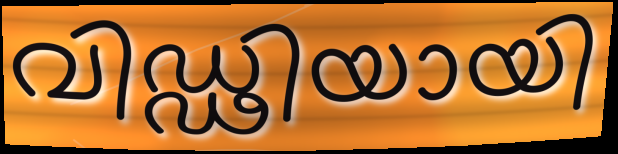
വിഡ്ഢിയായി